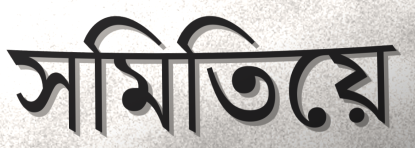
সমিতিয়ে